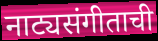
नाट्यसंगीताची